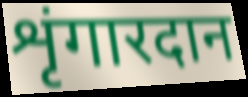
शृंगारदान